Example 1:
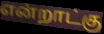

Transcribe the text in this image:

என்றாட்கு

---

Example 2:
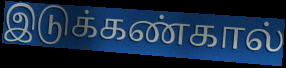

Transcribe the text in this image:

இடுக்கண்கால்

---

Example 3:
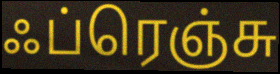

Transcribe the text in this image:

ஃப்ரெஞ்சு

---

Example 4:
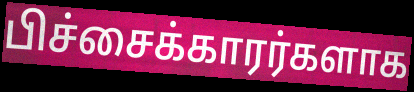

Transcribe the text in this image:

பிச்சைக்காரர்களாக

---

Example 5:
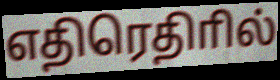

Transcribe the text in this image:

எதிரெதிரில்